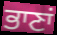
ਭਾਣਾਂ